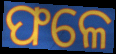
ଫଳେ